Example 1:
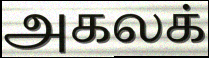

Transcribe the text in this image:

அகலக்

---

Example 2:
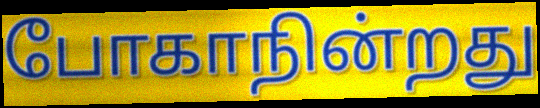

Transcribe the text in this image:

போகாநின்றது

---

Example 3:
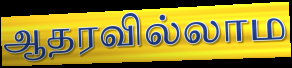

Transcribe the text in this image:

ஆதரவில்லாம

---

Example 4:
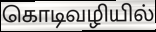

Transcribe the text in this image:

கொடிவழியில்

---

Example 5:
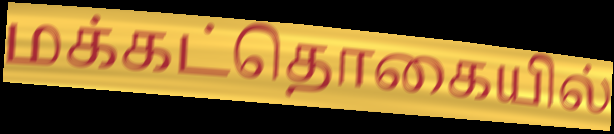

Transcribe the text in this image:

மக்கட்தொகையில்